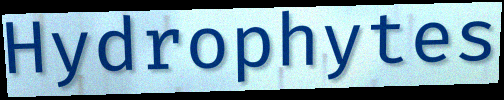
Hydrophytes